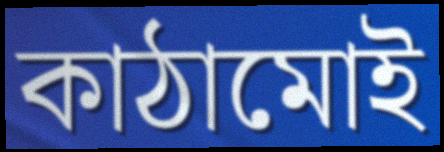
কাঠামোই